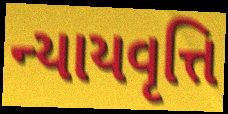
ન્યાયવૃત્તિ